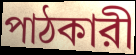
পাঠকারী